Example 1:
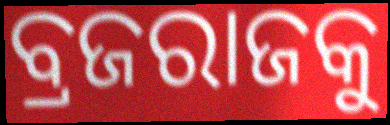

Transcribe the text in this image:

ବ୍ରଜରାଜକୁ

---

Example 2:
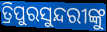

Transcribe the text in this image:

ତ୍ରିପୁରସୁନ୍ଦରୀଙ୍କୁ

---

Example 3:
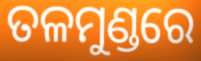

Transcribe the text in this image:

ତଳମୁଣ୍ଡରେ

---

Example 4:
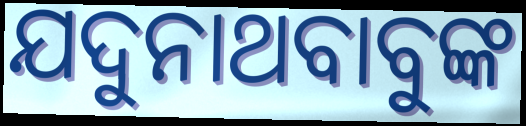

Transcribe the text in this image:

ଯଦୁନାଥବାବୁଙ୍କ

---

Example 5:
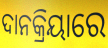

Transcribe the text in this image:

ଦାନକ୍ରିୟାରେ